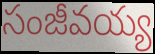
సంజీవయ్య